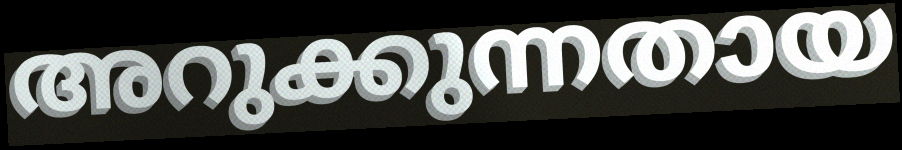
അറുക്കുന്നതായ